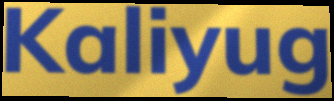
Kaliyug